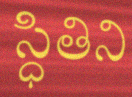
స్ధితిని